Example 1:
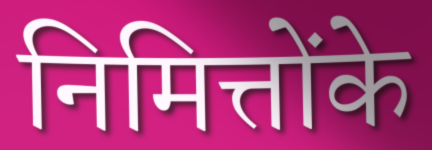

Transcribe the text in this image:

निमित्तोंके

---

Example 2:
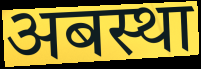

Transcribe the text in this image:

अबस्था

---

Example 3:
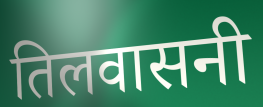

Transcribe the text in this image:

तिलवासनी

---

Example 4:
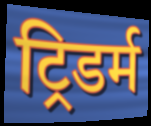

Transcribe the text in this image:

ट्रिडर्म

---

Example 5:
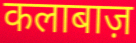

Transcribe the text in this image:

कलाबाज़